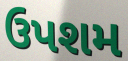
ઉપશમ